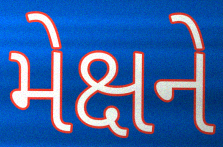
મેક્ષને